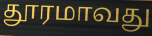
தூரமாவது